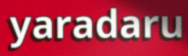
yaradaru